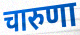
चारुणा